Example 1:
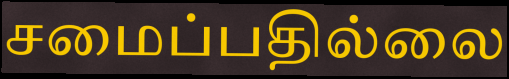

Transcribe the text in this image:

சமைப்பதில்லை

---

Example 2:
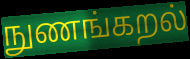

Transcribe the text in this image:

நுணங்கறல்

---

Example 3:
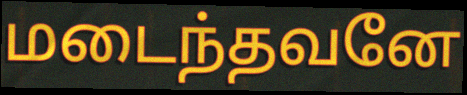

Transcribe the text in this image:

மடைந்தவனே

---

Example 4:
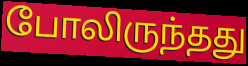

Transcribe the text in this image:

போலிருந்தது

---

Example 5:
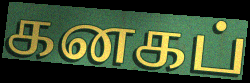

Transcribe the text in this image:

கனகப்